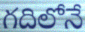
గదిలోనే